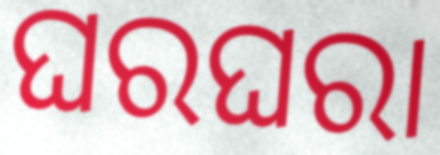
ଘରଘରା